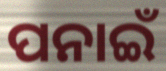
ପନାଇଁ